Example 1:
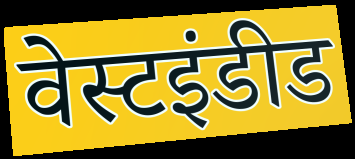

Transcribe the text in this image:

वेस्टइंडीड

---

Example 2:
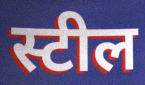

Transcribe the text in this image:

स्टील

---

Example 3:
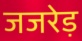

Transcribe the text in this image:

जजरेड़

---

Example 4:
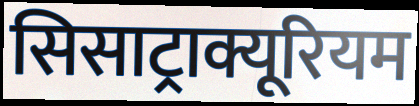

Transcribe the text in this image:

सिसाट्राक्यूरियम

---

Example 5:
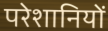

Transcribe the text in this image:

परेशानियों